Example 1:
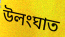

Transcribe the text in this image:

উলংঘাত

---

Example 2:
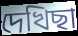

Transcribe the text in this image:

দেখিছা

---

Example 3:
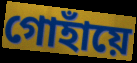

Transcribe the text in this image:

গোহাঁয়ে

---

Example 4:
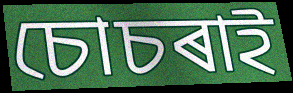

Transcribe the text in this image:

চোচৰাই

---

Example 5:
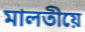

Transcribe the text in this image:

মালতীয়ে